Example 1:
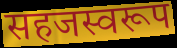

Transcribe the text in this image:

सहजस्वरूप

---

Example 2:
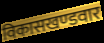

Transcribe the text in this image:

विकासखण्‍डवार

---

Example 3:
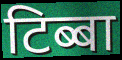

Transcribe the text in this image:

टिब्बा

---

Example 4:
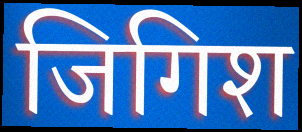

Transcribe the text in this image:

जिगिश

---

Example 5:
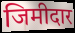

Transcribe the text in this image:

जिमीदार